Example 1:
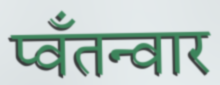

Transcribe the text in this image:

प्वॅंतन्वार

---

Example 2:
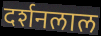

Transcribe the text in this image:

दर्शनलाल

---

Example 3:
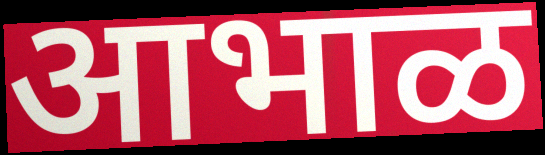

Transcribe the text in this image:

आभाळ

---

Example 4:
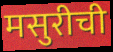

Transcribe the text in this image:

मसुरीची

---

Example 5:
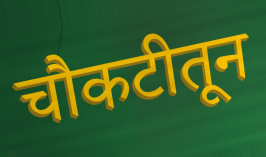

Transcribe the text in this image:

चौकटीतून